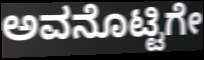
ಅವನೊಟ್ಟಿಗೇ